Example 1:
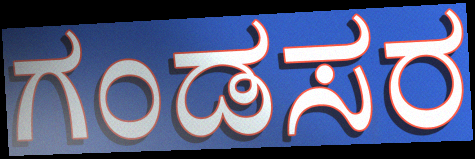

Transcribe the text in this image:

ಗಂಡಸರ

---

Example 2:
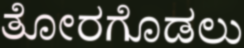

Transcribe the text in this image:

ತೋರಗೊಡಲು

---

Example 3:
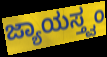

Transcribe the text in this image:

ಜ್ಯಾಯಸ್ತ್ವಂ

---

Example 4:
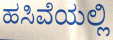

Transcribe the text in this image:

ಹಸಿವೆಯಲ್ಲಿ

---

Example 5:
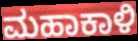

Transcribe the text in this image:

ಮಹಾಕಾಳಿ